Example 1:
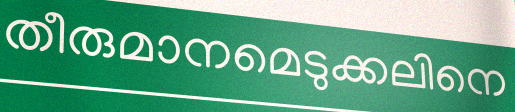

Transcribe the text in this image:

തീരുമാനമെടുക്കലിനെ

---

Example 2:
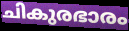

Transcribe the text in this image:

ചികുരഭാരം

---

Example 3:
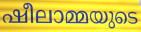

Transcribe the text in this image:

ഷീലാമ്മയുടെ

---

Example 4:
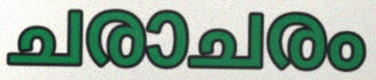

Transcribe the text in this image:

ചരാചരം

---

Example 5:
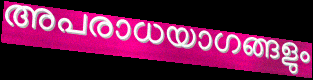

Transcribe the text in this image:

അപരാധയാഗങ്ങളും